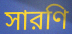
সারণি